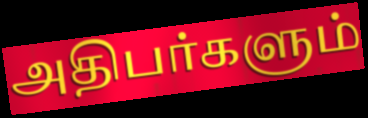
அதிபர்களும்